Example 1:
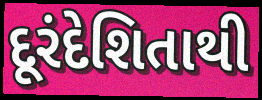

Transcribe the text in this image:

દૂરંદેશિતાથી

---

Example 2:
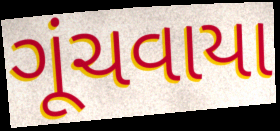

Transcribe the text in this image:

ગૂંચવાયા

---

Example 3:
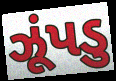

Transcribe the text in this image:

ઝૂંપડુ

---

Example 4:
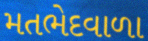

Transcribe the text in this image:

મતભેદવાળા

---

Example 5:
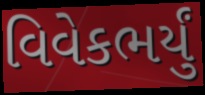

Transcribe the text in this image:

વિવેકભર્યું